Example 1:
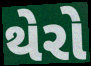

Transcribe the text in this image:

થેરો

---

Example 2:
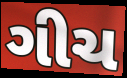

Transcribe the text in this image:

ગીચ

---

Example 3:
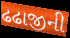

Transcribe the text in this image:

ઢઢાજીની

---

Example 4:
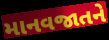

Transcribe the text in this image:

માનવજાતને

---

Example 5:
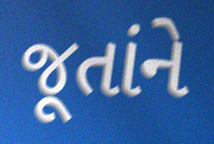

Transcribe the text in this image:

જૂતાંને